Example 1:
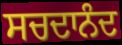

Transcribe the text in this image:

ਸਚਦਾਨੰਦ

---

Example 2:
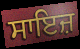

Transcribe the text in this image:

ਸਾਇਜ਼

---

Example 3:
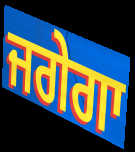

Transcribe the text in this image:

ਜਗੇਗਾ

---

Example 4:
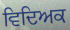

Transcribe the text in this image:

ਵਿਦਿਅਕ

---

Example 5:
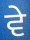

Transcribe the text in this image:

ਵੇ